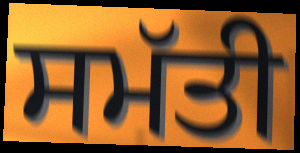
ਸਮੱਤੀ